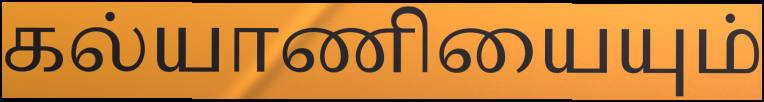
கல்யாணியையும்